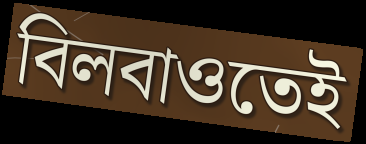
বিলবাওতেই